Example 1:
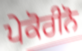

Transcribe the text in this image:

ਪੇਕੋਰੀਨੋ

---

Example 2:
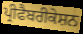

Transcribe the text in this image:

ਪ੍ਰੀਫੈਬਰੀਕੇਸ਼ਨ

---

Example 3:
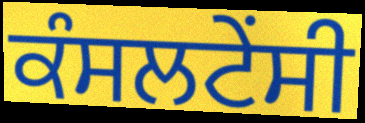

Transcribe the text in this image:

ਕੰਸਲਟੇਂਸੀ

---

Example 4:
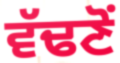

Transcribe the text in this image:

ਵੱਢਣੋਂ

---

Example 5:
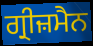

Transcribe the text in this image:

ਗ੍ਰੀਜ਼ਮੈਨ